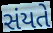
સંયતે